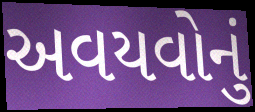
અવયવોનું